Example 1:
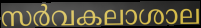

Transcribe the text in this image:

സർവകലാശാല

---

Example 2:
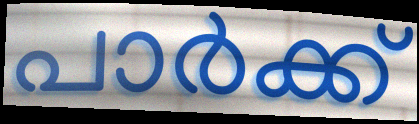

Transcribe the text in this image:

പാർക്ക്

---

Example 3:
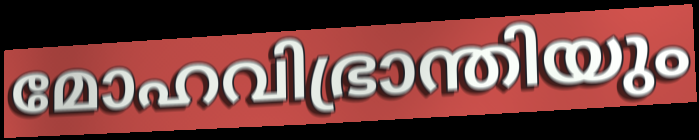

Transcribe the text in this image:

മോഹവിഭ്രാന്തിയും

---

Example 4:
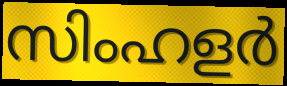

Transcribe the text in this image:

സിംഹളർ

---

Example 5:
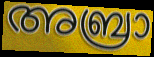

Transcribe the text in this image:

അബ്രാ